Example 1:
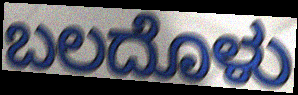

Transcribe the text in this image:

ಬಲದೊಳು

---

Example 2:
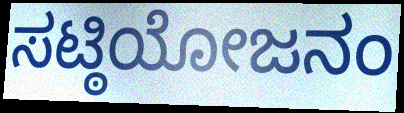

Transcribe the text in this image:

ಸಟ್ಠಿಯೋಜನಂ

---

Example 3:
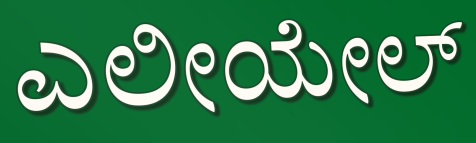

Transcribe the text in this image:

ಎಲೀಯೇಲ್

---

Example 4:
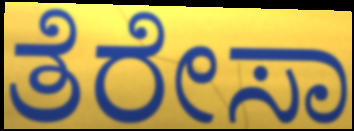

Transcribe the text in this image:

ತೆರೇಸಾ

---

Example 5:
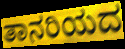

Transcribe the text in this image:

ತಾನರಿಯದ